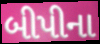
બીપીના